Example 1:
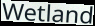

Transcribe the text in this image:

Wetland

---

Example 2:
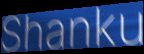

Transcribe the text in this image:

Shanku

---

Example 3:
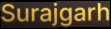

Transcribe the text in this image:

Surajgarh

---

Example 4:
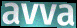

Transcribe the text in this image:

avva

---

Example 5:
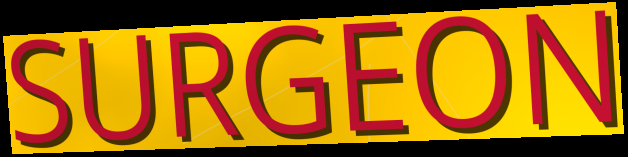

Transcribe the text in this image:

SURGEON